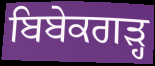
ਬਿਬੇਕਗੜ੍ਹ